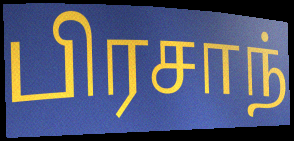
பிரசாந்